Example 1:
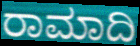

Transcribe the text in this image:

ರಾಮಾದಿ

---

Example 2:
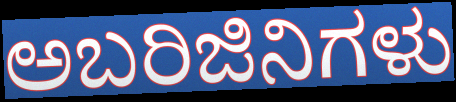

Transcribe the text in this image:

ಅಬರಿಜಿನಿಗಳು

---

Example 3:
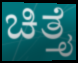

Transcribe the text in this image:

ಚಿತ್ತೈ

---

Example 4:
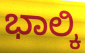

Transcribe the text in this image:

ಭಾಲ್ಕಿ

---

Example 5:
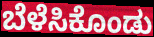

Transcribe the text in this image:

ಬೆಳೆಸಿಕೊಂಡು